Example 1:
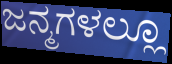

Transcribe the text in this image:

ಜನ್ಮಗಳಲ್ಲೂ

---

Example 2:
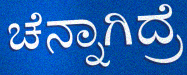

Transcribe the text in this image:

ಚೆನ್ನಾಗಿದ್ರೆ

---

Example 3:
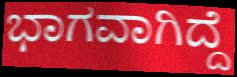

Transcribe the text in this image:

ಭಾಗವಾಗಿದ್ದೆ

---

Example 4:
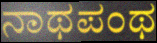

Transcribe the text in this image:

ನಾಥಪಂಥ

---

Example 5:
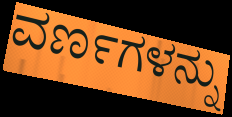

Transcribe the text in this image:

ವರ್ಣಗಳನ್ನು